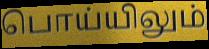
பொய்யிலும்